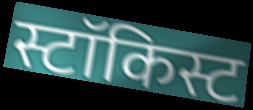
स्टॉकिस्ट